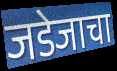
जडेजाचा